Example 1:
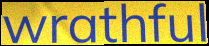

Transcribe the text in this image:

wrathful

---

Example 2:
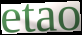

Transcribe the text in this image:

etao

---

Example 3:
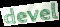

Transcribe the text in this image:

devel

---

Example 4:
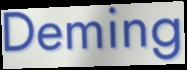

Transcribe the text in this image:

Deming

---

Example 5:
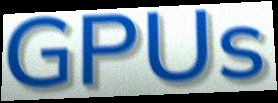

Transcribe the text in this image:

GPUs